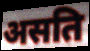
असति